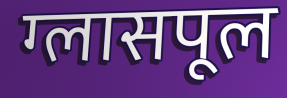
ग्लासपूल